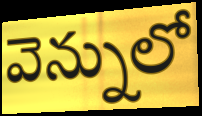
వెన్నులో